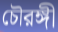
চৌরঙ্গী